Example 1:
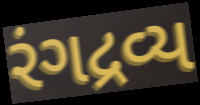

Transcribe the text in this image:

રંગદ્રવ્ય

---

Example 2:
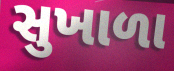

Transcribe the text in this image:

સુખાળા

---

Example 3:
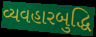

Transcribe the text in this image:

વ્યવહારબુદ્ધિ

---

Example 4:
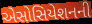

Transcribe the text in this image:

એસોસિયેશનની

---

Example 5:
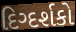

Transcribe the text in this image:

દિગ્દર્શકો